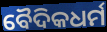
ବୈଦିକଧର୍ମ